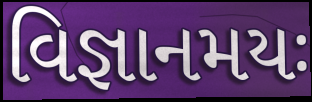
વિજ્ઞાનમયઃ